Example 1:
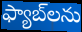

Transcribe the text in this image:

ఫ్యాబ్‌లను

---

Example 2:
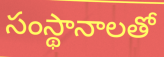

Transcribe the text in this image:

సంస్థానాలతో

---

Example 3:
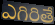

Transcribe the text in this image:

ఎగిరితే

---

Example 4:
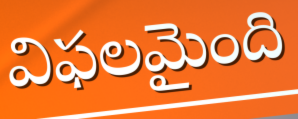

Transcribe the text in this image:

విఫలమైంది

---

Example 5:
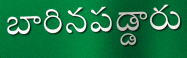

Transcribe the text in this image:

బారినపడ్డారు